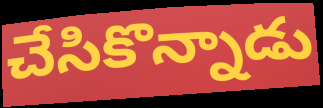
చేసికొన్నాడు